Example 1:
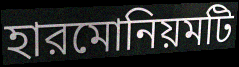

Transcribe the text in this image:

হারমোনিয়মটি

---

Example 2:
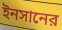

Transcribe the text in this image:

ইনসানের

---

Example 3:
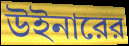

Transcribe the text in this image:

উইনারের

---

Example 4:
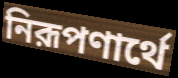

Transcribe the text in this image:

নিরূপণার্থে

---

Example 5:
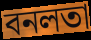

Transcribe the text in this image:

বনলতা